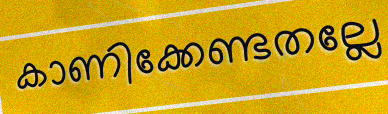
കാണിക്കേണ്ടതല്ലേ